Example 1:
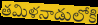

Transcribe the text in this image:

తమిళనాడులోకి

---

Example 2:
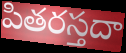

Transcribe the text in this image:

పితరస్తదా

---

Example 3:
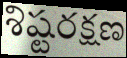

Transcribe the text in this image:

శిష్టరక్షణ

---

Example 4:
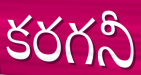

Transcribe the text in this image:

కరగనీ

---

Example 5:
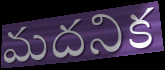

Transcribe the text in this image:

మదనిక